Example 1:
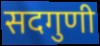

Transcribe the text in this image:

सदगुणी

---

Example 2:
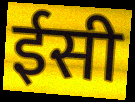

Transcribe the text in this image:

ईसी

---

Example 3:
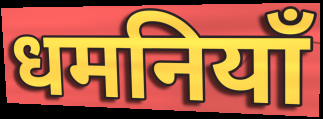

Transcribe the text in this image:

धमनियाँ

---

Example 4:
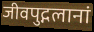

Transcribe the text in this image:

जीवपुद्गलानां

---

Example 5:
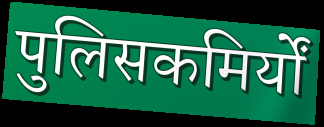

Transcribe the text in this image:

पुलिसकमिर्यों